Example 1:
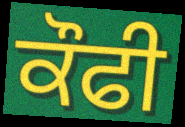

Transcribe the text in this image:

ਕੌਫੀ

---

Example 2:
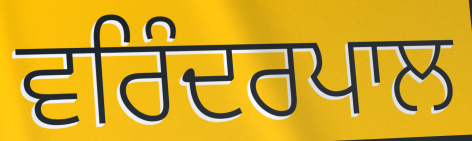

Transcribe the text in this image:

ਵਰਿੰਦਰਪਾਲ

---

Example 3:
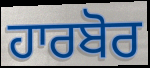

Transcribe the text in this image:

ਹਾਰਬੋਰ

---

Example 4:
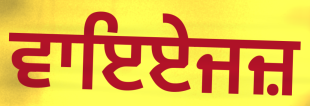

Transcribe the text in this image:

ਵਾਇਏਜਜ਼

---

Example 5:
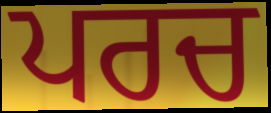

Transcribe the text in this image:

ਪਰਚ